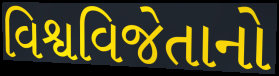
વિશ્વવિજેતાનો